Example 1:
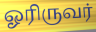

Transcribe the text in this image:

ஓரிருவர்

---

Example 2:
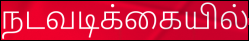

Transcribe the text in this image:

நடவடிக்கையில்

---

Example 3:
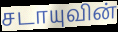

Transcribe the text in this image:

சடாயுவின்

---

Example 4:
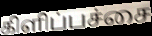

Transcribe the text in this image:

கிளிப்பச்சை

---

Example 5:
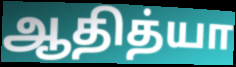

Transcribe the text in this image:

ஆதித்யா